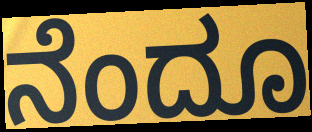
ನೆಂದೂ